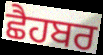
ਛੈਹਬਰ